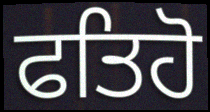
ਫਤਿਹੋ